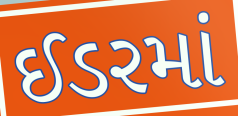
ઈડરમાં